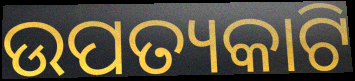
ଉପତ୍ୟକାଟି